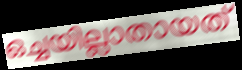
ഒച്ചയില്ലാതായത്